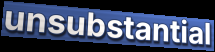
unsubstantial